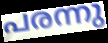
പരന്നു